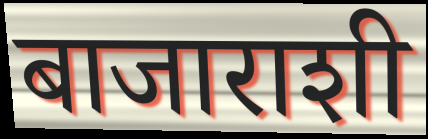
बाजाराशी